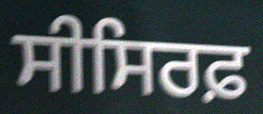
ਸੀਸਿਰਫ਼